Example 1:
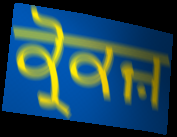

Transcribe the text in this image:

ਕ੍ਰੋਕਜ਼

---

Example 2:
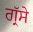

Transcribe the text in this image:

ਗ੍ਰੱਸੇ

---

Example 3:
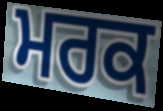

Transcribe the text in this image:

ਮਰਕ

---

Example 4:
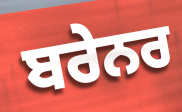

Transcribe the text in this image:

ਬਰੇਨਰ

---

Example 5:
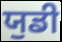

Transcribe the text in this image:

ਯੁਡੀ